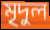
মৃদুল